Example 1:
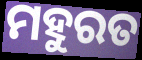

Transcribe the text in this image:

ମହୁରତ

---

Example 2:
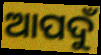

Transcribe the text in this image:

ଆପଦୁଁ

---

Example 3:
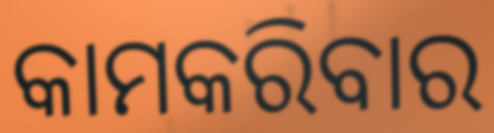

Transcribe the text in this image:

କାମକରିବାର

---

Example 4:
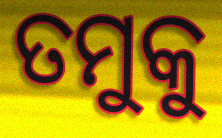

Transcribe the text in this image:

ତମୁକୁ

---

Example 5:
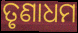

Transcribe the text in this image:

ତୃଣାଧମ